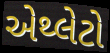
એથ્લેટો